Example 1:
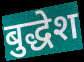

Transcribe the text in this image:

बुद्धेश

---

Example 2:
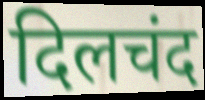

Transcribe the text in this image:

दिलचंद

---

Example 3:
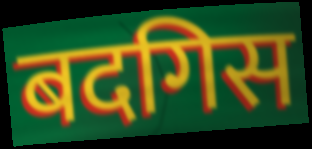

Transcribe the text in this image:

बदगिस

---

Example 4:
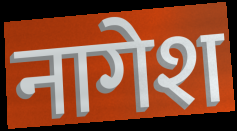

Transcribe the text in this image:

नागेश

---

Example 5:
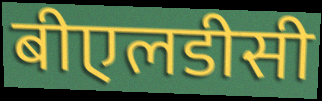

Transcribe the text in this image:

बीएलडीसी